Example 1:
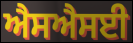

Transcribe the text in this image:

ਐਸਐਸਈ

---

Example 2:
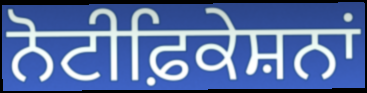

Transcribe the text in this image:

ਨੋਟੀਫ਼ਿਕੇਸ਼ਨਾਂ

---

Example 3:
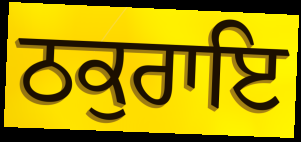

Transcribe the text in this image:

ਠਕੁਰਾਇ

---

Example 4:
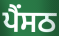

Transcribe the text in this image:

ਪੈਂਸਠ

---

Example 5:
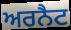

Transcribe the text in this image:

ਅਰਨੈਟ